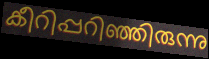
കീറിപ്പറിഞ്ഞിരുന്നു